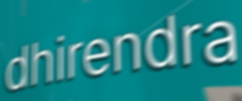
dhirendra